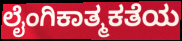
ಲೈಂಗಿಕಾತ್ಮಕತೆಯ